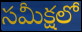
సమీక్షలో